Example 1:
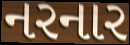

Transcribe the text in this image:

નરનાર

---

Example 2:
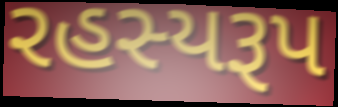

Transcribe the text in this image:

રહસ્યરૂપ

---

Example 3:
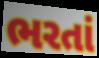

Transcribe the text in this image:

ભરતાં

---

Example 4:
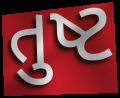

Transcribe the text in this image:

તુષ્ટ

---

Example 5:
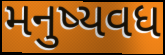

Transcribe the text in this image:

મનુષ્યવધ